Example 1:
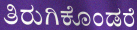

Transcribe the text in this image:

ತಿರುಗಿಕೊಂಡರೆ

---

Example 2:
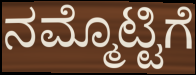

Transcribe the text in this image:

ನಮ್ಮೊಟ್ಟಿಗೆ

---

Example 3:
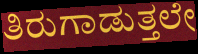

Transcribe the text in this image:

ತಿರುಗಾಡುತ್ತಲೇ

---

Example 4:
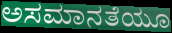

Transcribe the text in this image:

ಅಸಮಾನತೆಯೂ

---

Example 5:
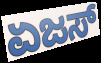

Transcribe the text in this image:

ಏಜಸ್